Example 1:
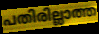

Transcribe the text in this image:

പതിരില്ലാത്ത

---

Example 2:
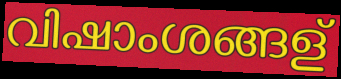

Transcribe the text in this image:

വിഷാംശങ്ങള്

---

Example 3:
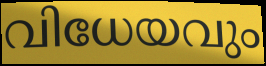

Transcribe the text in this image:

വിധേയവും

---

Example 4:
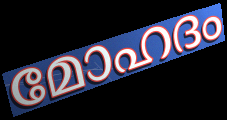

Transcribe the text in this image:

മോഹദം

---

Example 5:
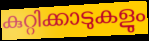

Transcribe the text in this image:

കുറ്റിക്കാടുകളും